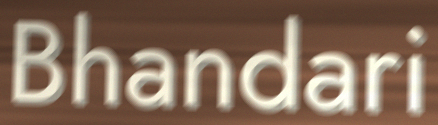
Bhandari